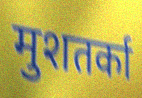
मुशतर्का